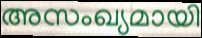
അസംഖ്യമായി